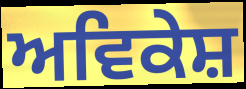
ਅਵਿਕੇਸ਼